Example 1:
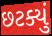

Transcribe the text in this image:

છટક્યું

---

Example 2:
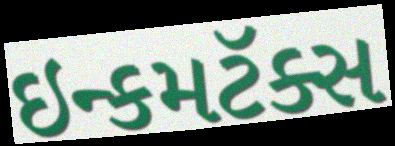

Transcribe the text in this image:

ઇન્કમટૅક્સ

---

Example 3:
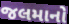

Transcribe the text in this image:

જલમાનો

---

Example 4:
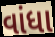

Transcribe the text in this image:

વાંધા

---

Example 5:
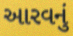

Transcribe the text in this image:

આરવનું